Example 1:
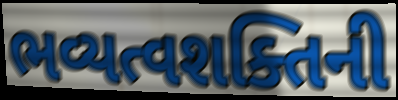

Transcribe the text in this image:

ભવ્યત્વશક્તિની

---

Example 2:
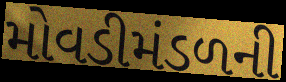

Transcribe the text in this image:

મોવડીમંડળની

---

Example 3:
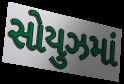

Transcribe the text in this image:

સોયુઝમાં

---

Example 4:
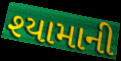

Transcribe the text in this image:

શ્યામાની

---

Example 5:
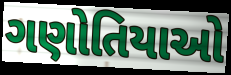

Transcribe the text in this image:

ગણોતિયાઓ